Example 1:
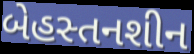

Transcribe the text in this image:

બેહસ્તનશીન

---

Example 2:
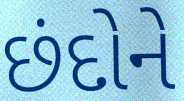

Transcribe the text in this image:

છંદોને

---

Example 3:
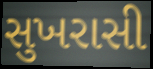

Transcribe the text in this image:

સુખરાસી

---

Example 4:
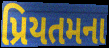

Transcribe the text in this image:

પ્રિયતમના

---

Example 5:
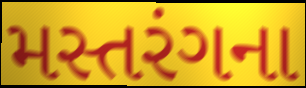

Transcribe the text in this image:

મસ્તરંગના